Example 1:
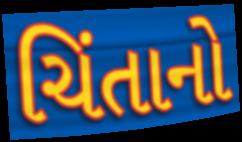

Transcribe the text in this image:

ચિંતાનો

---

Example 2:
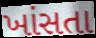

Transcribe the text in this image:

ખાંસતા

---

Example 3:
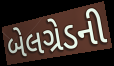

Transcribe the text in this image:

બેલગ્રેડની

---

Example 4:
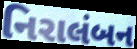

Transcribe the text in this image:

નિરાલંબન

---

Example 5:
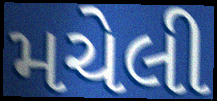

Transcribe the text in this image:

મચેલી